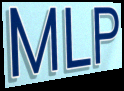
MLP